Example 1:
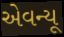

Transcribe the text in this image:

એવન્યૂ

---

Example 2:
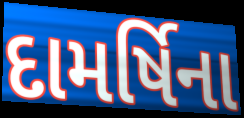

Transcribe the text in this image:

દામર્ષિના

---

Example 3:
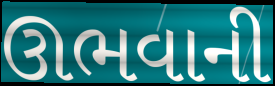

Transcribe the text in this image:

ઊભવાની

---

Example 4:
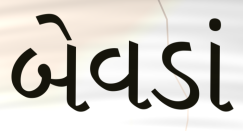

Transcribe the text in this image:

બેવડાં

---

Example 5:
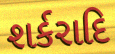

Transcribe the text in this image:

શર્કરાદિ